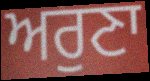
ਅਰੁਣਾ